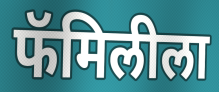
फॅमिलीला